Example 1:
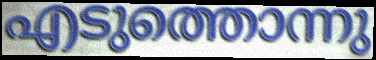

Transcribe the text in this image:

എടുത്തൊന്നു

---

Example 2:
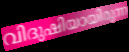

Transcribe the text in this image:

വിദുഷിയായിരുന്ന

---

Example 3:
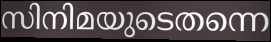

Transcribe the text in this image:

സിനിമയുടെതന്നെ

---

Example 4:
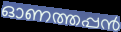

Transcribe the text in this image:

ഓണത്തപ്പൻ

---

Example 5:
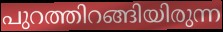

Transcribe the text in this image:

പുറത്തിറങ്ങിയിരുന്ന